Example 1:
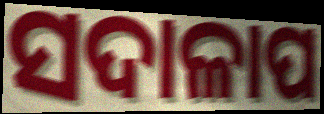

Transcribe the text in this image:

ସଦାଳାପ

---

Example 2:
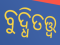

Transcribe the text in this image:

ବୁଦ୍ଧିତତ୍ତ୍ବ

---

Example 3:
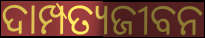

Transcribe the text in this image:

ଦାମ୍ପତ୍ୟଜୀବନ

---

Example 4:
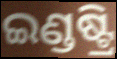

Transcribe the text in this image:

ଇଣ୍ଡଷ୍ଟ୍ରି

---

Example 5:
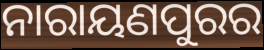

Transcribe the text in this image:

ନାରାୟଣପୁରର